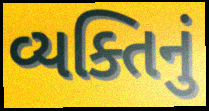
વ્યક્તિનું